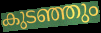
കുടഞ്ഞും